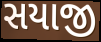
સયાજી